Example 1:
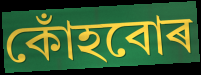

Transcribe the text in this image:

কোঁহবোৰ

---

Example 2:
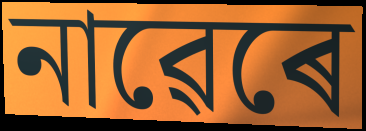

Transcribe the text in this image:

নাৱেৰে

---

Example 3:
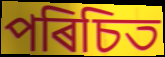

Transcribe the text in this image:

পৰিচিত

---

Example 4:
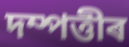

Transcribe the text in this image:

দম্পত্তীৰ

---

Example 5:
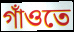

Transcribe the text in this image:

গাঁওতে